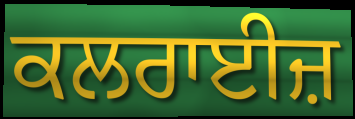
ਕਲਰਾਈਜ਼